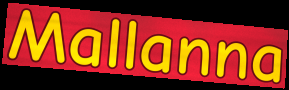
Mallanna